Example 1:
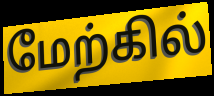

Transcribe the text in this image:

மேற்கில்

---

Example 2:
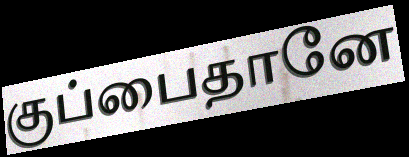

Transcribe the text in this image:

குப்பைதானே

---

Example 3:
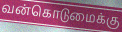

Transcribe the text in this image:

வன்கொடுமைக்கு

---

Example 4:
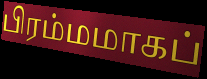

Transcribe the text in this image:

பிரம்மமாகப்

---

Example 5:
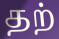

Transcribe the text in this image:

தற்